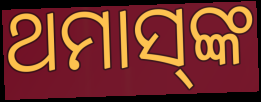
ଥମାସ୍‌ଙ୍କ